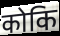
कोकि